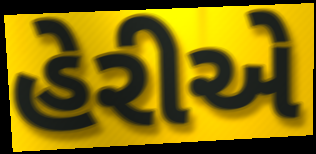
હેરીએ